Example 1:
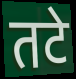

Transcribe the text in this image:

तटे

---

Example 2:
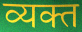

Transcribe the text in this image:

व्यक्‍त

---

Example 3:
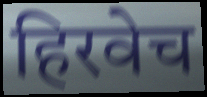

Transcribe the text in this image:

हिरवेच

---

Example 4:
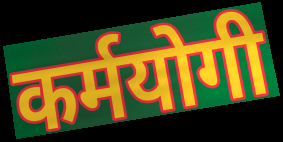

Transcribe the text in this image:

कर्मयोगी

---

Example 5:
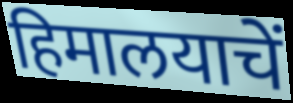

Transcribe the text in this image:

हिमालयाचें